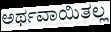
ಅರ್ಥವಾಯಿತಲ್ಲ